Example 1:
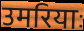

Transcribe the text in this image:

उमरियाः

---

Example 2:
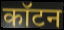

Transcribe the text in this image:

कॉटन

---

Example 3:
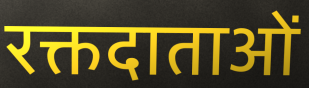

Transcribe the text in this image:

रक्तदाताओं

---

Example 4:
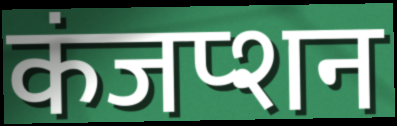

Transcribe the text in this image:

कंजप्शन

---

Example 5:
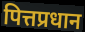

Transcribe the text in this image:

पित्तप्रधान